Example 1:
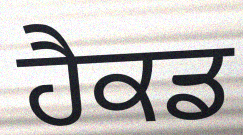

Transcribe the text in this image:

ਹੈਕਡ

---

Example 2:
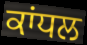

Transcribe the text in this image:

ਕਾਂਧਲ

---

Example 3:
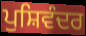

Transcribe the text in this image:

ਪੁਸ਼ਿਵੰਦਰ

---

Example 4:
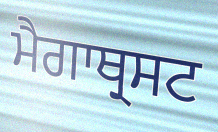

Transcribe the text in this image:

ਮੈਗਾਥ੍ਰਸਟ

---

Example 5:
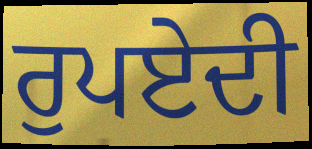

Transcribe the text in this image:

ਰੁਪਏਦੀ